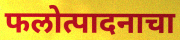
फलोत्पादनाचा